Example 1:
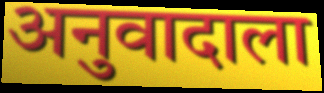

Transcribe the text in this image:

अनुवादाला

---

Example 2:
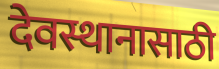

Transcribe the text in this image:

देवस्थानासाठी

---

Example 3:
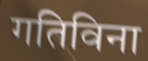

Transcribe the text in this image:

गतिविना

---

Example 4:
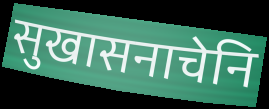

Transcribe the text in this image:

सुखासनाचेनि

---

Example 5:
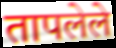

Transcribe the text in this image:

तापलेले